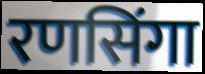
रणसिंगा